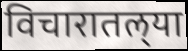
विचारातल्या